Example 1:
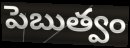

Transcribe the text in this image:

పెబుత్వం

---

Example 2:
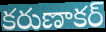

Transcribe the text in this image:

కరుణాకర్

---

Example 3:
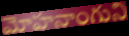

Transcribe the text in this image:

మోహనాంగుని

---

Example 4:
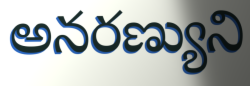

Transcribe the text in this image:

అనరణ్యుని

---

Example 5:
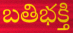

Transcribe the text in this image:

బతిభక్తి